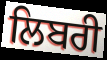
ਲਿਬਰੀ